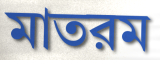
মাতরম